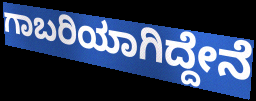
ಗಾಬರಿಯಾಗಿದ್ದೇನೆ